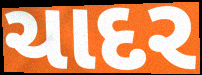
ચાદર